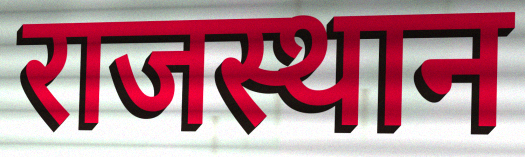
राजस्थान